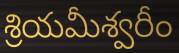
శ్రియమీశ్వరీం